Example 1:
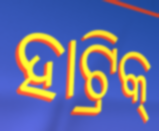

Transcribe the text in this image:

ହାଟ୍ରିକ୍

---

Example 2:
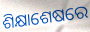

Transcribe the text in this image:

ଶିକ୍ଷାଶେଷରେ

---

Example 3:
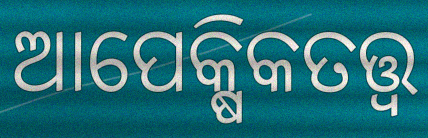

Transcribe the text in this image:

ଆପେକ୍ଷିକତତ୍ତ୍ୱ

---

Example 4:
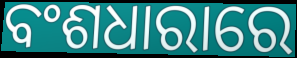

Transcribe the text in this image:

ବଂଶଧାରାରେ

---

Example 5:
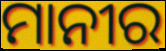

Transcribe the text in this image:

ମାନୀର